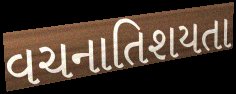
વચનાતિશયતા